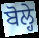
ਬੋਲ੍ਹੇ